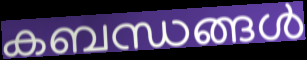
കബന്ധങ്ങൾ